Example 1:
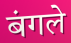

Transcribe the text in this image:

बंगले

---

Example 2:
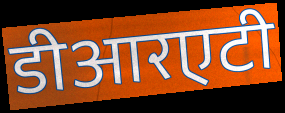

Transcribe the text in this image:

डीआरएटी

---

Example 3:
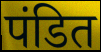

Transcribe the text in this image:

पंडित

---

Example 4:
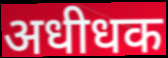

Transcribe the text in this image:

अधीधक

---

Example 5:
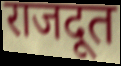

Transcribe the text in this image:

राजदूत